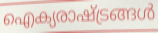
ഐക്യരാഷ്ട്രങ്ങൾ